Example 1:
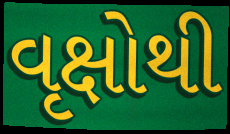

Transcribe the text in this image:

વૃક્ષોથી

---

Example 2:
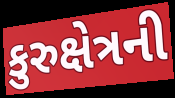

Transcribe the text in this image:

કુરુક્ષેત્રની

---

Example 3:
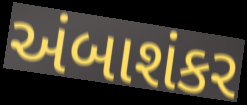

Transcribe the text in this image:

અંબાશંકર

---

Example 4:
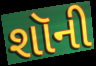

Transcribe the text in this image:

શૉની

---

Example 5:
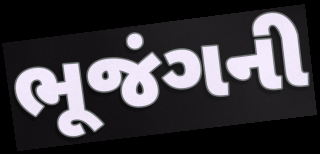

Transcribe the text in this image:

ભૂજંગની